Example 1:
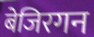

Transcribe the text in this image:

बेजिरगन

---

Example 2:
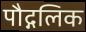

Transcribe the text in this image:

पौद्गलिक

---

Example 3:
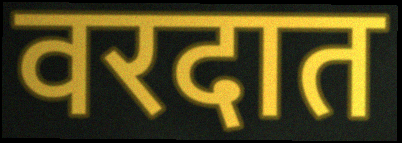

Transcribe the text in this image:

वरदात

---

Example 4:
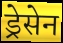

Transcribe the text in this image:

ड्रेसेन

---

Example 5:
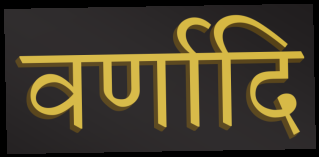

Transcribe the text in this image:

वर्णादि